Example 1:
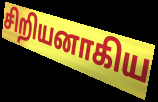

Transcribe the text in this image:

சிறியனாகிய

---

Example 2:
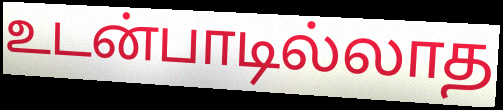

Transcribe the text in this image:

உடன்பாடில்லாத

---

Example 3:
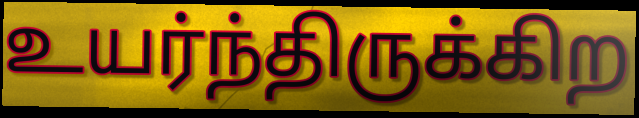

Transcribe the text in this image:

உயர்ந்திருக்கிற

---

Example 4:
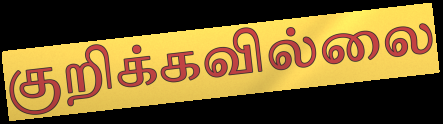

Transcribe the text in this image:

குறிக்கவில்லை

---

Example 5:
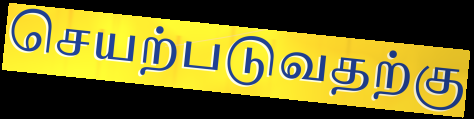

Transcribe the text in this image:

செயற்படுவதற்கு